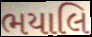
ભયાલિ